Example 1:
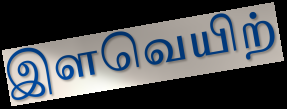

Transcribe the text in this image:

இளவெயிற்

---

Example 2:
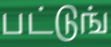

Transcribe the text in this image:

பட்டுங்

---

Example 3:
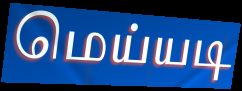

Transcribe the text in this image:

மெய்யடி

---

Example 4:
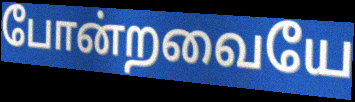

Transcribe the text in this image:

போன்றவையே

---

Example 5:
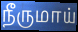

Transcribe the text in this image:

நீருமாய்